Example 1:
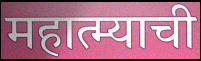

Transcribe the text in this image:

महात्म्याची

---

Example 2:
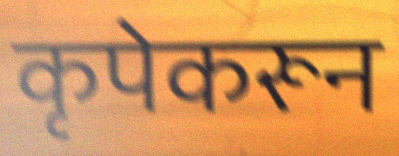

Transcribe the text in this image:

कृपेकरून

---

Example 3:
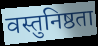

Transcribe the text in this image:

वस्तुनिष्ठता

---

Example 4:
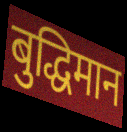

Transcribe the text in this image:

बुद्धिमान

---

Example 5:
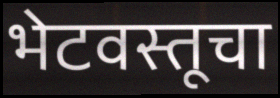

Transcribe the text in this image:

भेटवस्तूचा